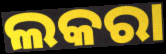
ଲକରା